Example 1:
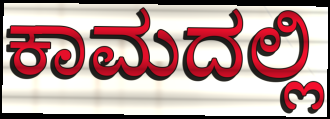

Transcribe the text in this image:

ಕಾಮದಲ್ಲಿ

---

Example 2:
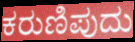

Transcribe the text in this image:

ಕರುಣಿಪುದು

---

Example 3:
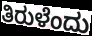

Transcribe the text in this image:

ತಿರುಳೆಂದು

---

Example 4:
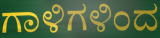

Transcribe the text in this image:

ಗಾಳಿಗಳಿಂದ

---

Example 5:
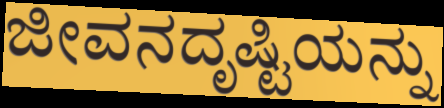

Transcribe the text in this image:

ಜೀವನದೃಷ್ಟಿಯನ್ನು